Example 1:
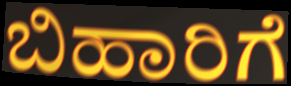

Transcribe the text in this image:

ಬಿಹಾರಿಗೆ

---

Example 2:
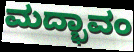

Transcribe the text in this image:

ಮದ್ಭಾವಂ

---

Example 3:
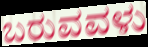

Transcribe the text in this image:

ಬರುವವಳು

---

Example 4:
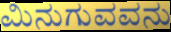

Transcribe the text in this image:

ಮಿನುಗುವವನು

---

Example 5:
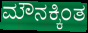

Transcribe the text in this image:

ಮೌನಕ್ಕಿಂತ